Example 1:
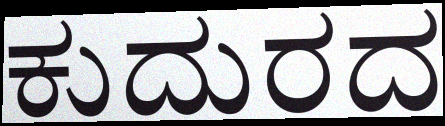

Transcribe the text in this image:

ಕುದುರದ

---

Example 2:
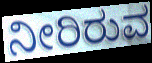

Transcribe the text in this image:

ನೀರಿರುವ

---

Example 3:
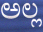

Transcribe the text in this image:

ಅಲ್ಲ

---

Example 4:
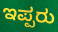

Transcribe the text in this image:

ಇಪ್ಪರು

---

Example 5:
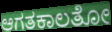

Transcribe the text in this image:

ಆಗತಕಾಲತೋ